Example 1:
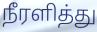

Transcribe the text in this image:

நீரளித்து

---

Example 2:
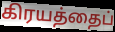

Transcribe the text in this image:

கிரயத்தைப்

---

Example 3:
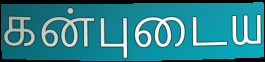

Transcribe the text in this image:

கன்புடைய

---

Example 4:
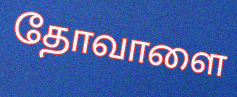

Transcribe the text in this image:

தோவாளை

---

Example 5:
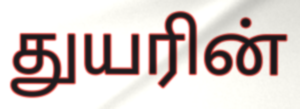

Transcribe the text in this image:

துயரின்